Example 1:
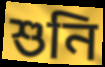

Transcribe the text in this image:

শুনি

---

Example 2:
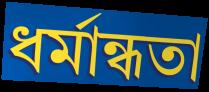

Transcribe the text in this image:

ধর্মান্ধতা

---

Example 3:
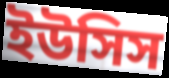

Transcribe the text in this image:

ইউসিস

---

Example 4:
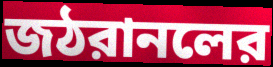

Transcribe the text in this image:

জঠরানলের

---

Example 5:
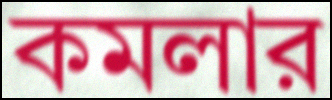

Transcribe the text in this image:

কমলার